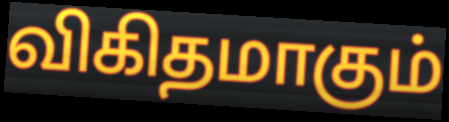
விகிதமாகும்